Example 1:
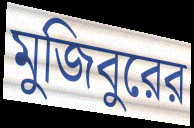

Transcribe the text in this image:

মুজিবুরের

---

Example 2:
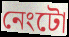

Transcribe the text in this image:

নেংটো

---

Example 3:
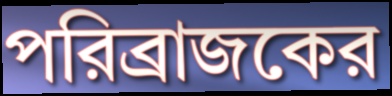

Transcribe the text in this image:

পরিব্রাজকের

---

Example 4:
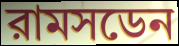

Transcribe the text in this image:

রামসডেন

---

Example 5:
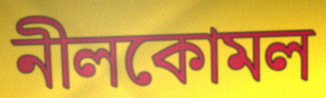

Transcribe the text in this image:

নীলকোমল